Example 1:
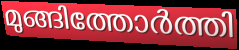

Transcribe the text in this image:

മുങ്ങിത്തോർത്തി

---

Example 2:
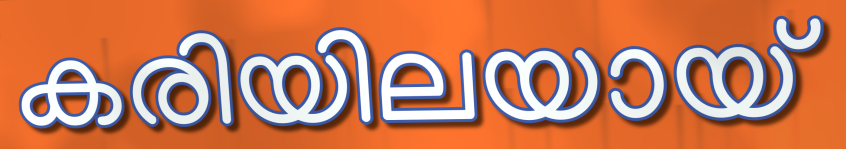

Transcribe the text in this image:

കരിയിലയായ്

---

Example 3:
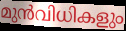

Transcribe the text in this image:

മുൻവിധികളും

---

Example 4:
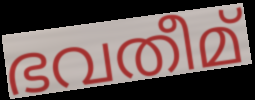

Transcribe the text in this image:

ഭവതീമ്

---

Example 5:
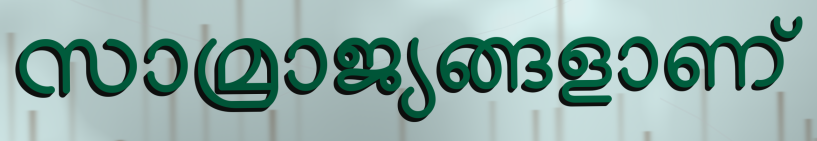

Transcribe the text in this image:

സാമ്രാജ്യങ്ങളാണ്